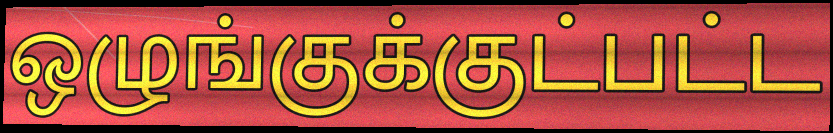
ஒழுங்குக்குட்பட்ட